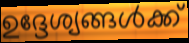
ഉദ്ദേശ്യങ്ങൾക്ക്